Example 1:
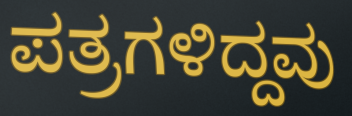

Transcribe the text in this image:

ಪತ್ರಗಳಿದ್ದವು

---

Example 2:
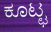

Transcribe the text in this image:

ಕೂಟ್ಟ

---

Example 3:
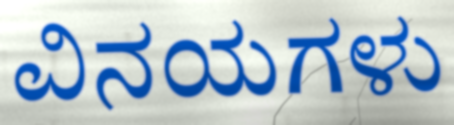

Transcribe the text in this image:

ವಿನಯಗಳು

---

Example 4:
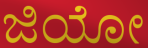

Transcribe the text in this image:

ಜಿಯೋ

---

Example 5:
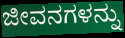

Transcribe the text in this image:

ಜೀವನಗಳನ್ನು